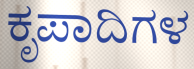
ಕೃಪಾದಿಗಳ